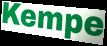
Kempe